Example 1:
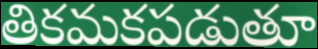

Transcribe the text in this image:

తికమకపడుతూ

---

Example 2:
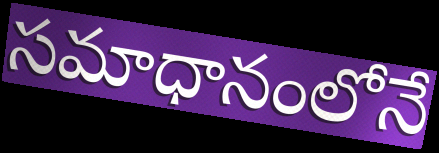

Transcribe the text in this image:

సమాధానంలోనే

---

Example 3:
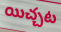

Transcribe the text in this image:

యిచ్చట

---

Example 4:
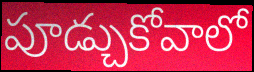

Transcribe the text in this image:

పూడ్చుకోవాలో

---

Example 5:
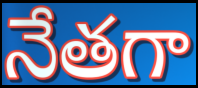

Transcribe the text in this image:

నేతగా